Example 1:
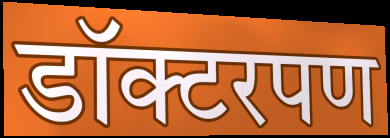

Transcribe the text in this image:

डॉक्टरपण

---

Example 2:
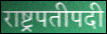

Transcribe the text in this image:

राष्ट्रपतीपदी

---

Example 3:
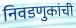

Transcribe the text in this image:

निवडणुकांची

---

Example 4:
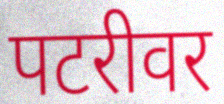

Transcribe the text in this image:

पटरीवर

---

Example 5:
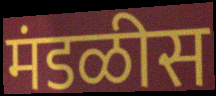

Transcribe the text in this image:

मंडळीस